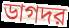
ডাগদর